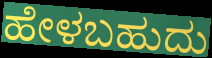
ಹೇಳಬಹುದು